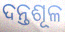
ଦନ୍ତଶୂଳ